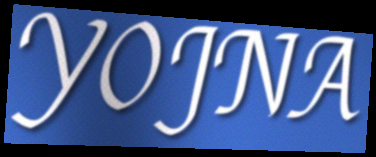
YOJNA